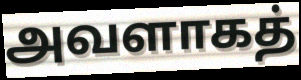
அவளாகத்